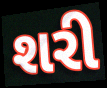
શરી